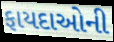
ફાયદાઓની